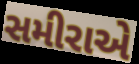
સમીરાએ